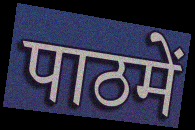
पाठमें